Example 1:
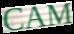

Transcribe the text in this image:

CAM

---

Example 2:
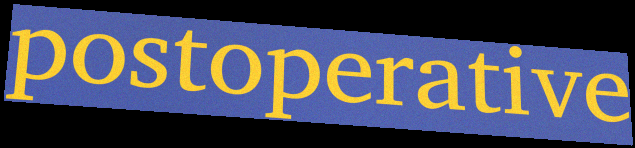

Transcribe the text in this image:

postoperative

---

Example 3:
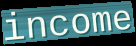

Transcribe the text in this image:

income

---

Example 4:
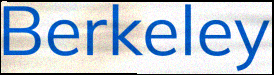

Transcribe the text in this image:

Berkeley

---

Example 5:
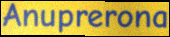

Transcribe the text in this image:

Anuprerona